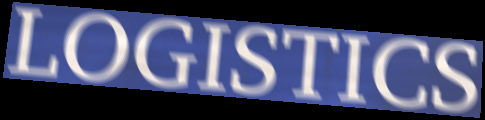
LOGISTICS